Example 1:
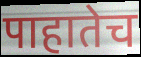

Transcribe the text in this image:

पाहातेच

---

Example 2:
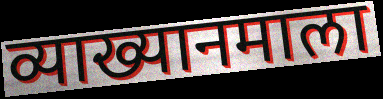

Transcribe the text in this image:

व्याख्यानमाला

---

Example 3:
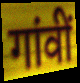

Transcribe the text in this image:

गांवीं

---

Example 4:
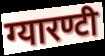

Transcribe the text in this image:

ग्यारण्टी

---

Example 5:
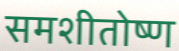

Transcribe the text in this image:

समशीतोष्ण